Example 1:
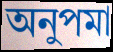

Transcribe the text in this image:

অনুপমা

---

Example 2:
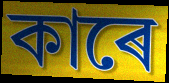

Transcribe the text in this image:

কাৰে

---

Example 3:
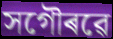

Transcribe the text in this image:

সগৌৰৱে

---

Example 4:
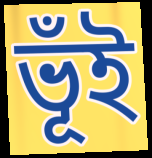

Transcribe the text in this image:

ভূঁই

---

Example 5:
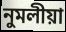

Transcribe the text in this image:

নুমলীয়া